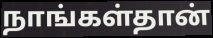
நாங்கள்தான்